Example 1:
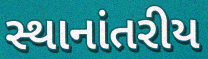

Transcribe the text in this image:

સ્થાનાંતરીય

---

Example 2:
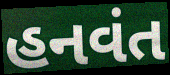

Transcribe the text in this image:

હનવંત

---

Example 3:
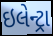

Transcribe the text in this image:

ઇલેન્ટ્રા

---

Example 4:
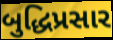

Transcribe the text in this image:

બુદ્ધિપ્રસાર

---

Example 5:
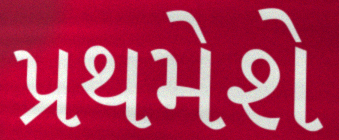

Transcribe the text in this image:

પ્રથમેશે